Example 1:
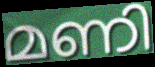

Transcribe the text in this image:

മണി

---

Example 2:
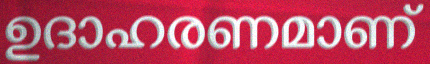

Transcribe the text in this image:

ഉദാഹരണമാണ്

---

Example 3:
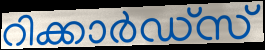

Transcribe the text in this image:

റിക്കാർഡ്സ്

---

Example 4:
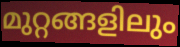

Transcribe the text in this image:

മുറ്റങ്ങളിലും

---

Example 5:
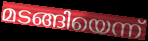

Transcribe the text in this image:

മടങ്ങിയെന്ന്